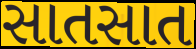
સાતસાત